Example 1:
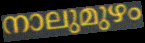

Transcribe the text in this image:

നാലുമുഴം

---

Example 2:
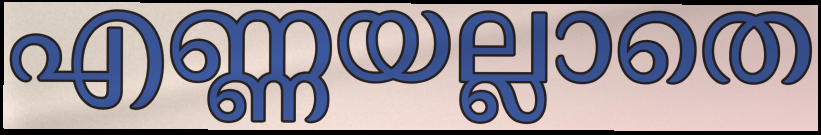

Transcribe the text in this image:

എണ്ണയല്ലാതെ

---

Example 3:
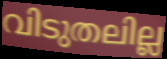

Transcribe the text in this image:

വിടുതലില്ല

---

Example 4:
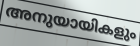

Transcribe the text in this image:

അനുയായികളും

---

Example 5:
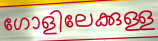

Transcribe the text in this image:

ഗോളിലേക്കുള്ള